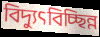
বিদ্যুৎবিচ্ছিন্ন